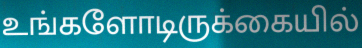
உங்களோடிருக்கையில்